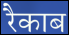
रैकाब